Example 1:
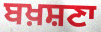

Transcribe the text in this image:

ਬਖ਼ਸ਼ਣਾ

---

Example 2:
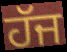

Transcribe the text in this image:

ਹੱਜ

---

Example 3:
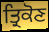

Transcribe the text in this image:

ਤ੍ਰਿਕੋਣ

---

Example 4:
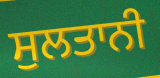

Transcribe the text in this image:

ਸੁਲਤਾਨੀ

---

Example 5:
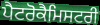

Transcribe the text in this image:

ਪੈਟਰੋਕੈਮਿਸਟਰੀ